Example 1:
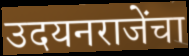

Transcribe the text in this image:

उदयनराजेंचा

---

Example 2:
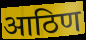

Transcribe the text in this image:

आठिण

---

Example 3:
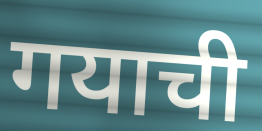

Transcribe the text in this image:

गयाची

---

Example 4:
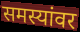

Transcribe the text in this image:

समस्यांवर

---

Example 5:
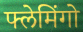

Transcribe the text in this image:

फ्लेमिंगो